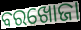
ବରଖୋଜା